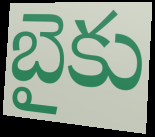
బైకు